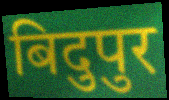
बिदुपुर